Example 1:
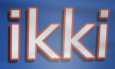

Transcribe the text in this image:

ikki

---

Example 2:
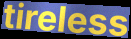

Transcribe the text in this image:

tireless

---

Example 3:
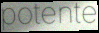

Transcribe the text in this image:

potente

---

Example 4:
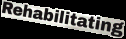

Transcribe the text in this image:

Rehabilitating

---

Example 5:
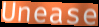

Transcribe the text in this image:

Unease